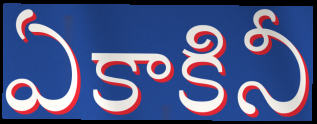
ఏకాకినీ